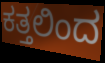
ಕತ್ತಲಿಂದ